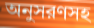
অনুসরণসহ